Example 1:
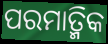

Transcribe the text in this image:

ପରମାତ୍ମିକ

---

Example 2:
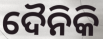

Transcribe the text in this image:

ଦୈନିକି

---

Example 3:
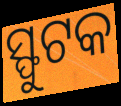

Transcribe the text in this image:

ସ୍ଫୁଟକ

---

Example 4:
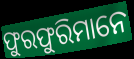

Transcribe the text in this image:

ଫୁରଫୁରିମାନେ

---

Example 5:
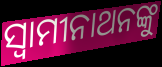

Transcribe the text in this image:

ସ୍ୱାମୀନାଥନଙ୍କୁ